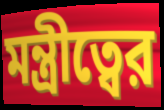
মন্ত্রীত্বের